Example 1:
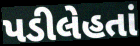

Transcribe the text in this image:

પડીલેહતાં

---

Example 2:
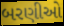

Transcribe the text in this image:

બરણીઓ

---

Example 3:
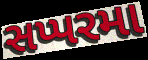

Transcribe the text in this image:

સપ્પરમા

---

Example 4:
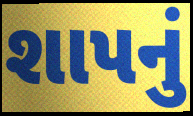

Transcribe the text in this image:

શાપનું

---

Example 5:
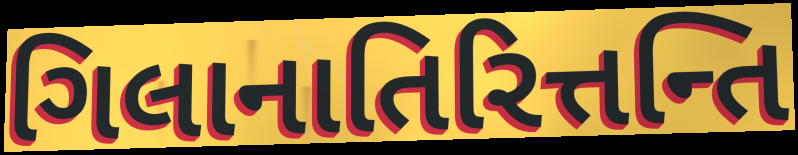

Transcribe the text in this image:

ગિલાનાતિરિત્તન્તિ